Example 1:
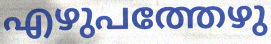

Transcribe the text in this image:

എഴുപത്തേഴു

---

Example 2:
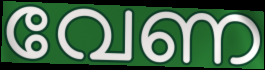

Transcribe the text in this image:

വേണ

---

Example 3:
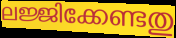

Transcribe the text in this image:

ലജ്ജിക്കേണ്ടതു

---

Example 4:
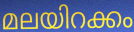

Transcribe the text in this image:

മലയിറക്കം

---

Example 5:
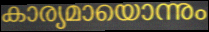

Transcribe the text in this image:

കാര്യമായൊന്നും